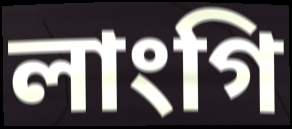
লাংগি